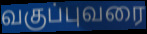
வகுப்புவரை